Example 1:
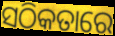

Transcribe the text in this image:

ସଠିକତାରେ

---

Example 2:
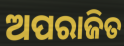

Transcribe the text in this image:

ଅପରାଜିତ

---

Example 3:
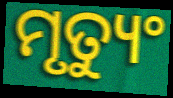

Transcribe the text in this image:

ମୃତ୍ୟୁଂ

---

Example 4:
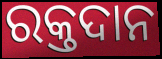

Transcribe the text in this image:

ରକ୍ତଦାନ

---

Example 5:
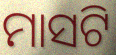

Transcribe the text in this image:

ମାସଟି